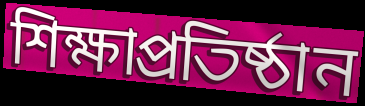
শিক্ষাপ্রতিষ্ঠান